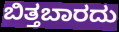
ಬಿತ್ತಬಾರದು